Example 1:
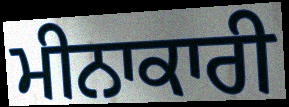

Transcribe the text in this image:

ਮੀਨਾਕਾਰੀ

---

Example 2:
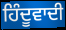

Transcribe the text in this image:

ਹਿੰਦੂਵਾਦੀ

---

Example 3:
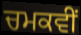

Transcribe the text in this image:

ਚਮਕਵੀਂ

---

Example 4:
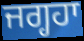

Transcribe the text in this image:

ਜਗ੍ਹਹਾ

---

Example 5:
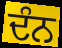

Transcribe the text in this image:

ਦੰਨ